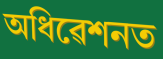
অধিৱেশনত